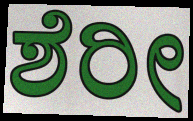
ಶೆರೀ